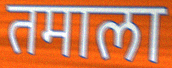
तमाला